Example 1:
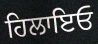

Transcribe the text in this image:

ਹਿਲਾਇਓ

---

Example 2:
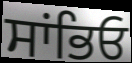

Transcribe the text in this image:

ਸਾਂਭਿਓ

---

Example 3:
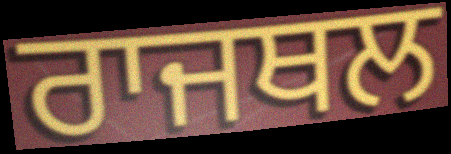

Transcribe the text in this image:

ਰਾਜਥਲ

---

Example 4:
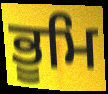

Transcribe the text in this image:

ਭੂਮਿ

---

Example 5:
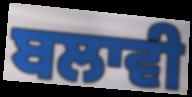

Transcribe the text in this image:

ਬਲਾਵੀ